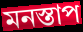
মনস্তাপ